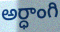
అర్ధాంగి